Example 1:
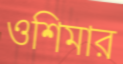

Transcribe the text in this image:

ওশিমার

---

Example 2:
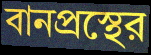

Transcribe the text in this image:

বানপ্রস্থের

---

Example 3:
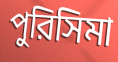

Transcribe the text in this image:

পুরিসিমা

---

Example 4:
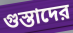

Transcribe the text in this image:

গুস্তাদের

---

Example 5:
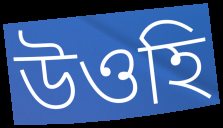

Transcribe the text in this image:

উওহি